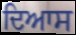
ਦਿਆਸ